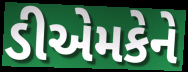
ડીએમકેને